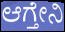
ಆಗ್ತೇನಿ